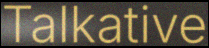
Talkative